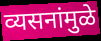
व्यसनांमुळे